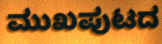
ಮುಖಪುಟದ